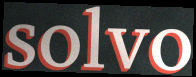
solvo